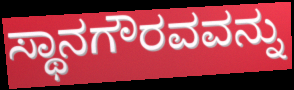
ಸ್ಥಾನಗೌರವವನ್ನು